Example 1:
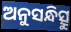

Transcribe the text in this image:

ଅନୁସନ୍ଧିତ୍ସୁ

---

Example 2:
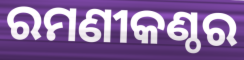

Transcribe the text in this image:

ରମଣୀକଣ୍ଠର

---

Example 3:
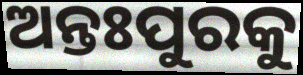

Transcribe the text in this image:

ଅନ୍ତଃପୁରକୁ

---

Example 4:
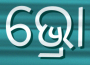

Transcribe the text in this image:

ଭ୍ରୋ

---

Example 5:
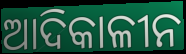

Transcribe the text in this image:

ଆଦିକାଳୀନ